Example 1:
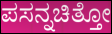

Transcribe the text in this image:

ಪಸನ್ನಚಿತ್ತೋ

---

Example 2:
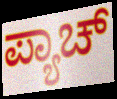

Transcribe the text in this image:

ಪ್ಯಾಚ್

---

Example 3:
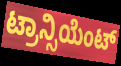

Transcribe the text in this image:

ಟ್ರಾನ್ಸಿಯೆಂಟ್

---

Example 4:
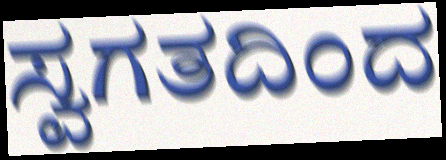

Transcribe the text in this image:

ಸ್ವಗತದಿಂದ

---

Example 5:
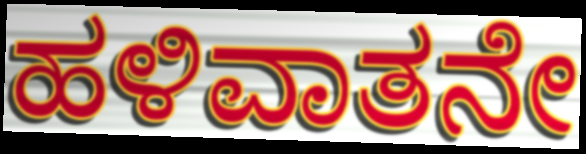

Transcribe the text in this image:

ಹಳಿವಾತನೇ